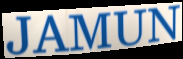
JAMUN